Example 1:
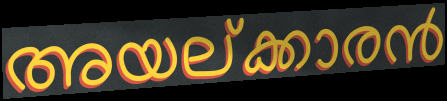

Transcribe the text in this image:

അയല്ക്കാരൻ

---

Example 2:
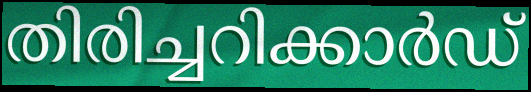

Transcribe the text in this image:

തിരിച്ചറിക്കാർഡ്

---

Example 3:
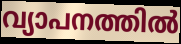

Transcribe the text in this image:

വ്യാപനത്തിൽ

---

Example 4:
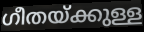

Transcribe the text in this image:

ഗീതയ്ക്കുള്ള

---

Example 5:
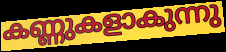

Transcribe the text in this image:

കണ്ണുകളാകുന്നു